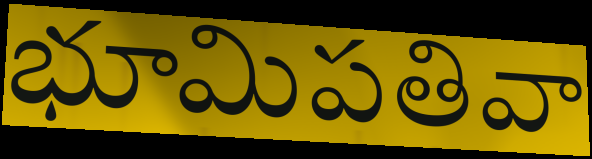
భూమిపతివా